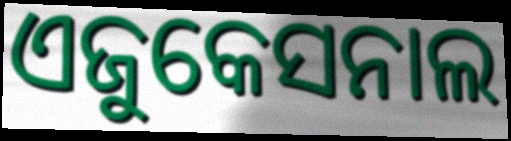
ଏଜୁକେସନାଲ